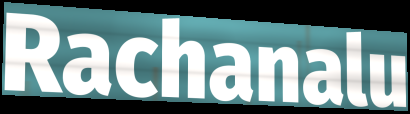
Rachanalu